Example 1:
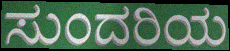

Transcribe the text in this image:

ಸುಂದರಿಯ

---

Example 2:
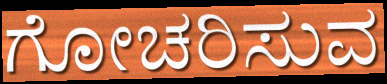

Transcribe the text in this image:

ಗೋಚರಿಸುವ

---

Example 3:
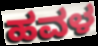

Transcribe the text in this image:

ಹವಳ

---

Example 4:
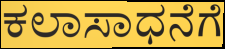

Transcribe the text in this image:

ಕಲಾಸಾಧನೆಗೆ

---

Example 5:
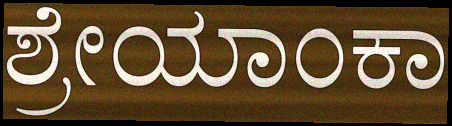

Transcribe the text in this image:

ಶ್ರೇಯಾಂಕಾ